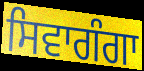
ਸਿਵਾਗੰਗਾ